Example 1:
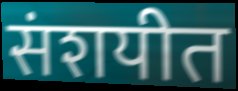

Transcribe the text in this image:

संशयीत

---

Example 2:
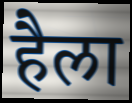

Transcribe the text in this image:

हैला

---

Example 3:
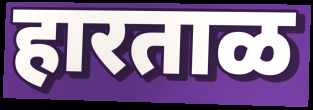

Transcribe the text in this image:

हारताळ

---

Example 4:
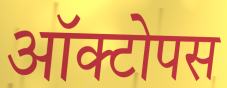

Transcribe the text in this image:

ऑक्टोपस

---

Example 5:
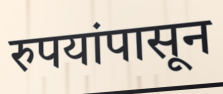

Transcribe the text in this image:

रुपयांपासून